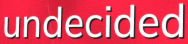
undecided